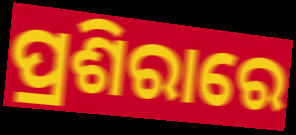
ପ୍ରଶିରାରେ